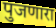
पुजणारा